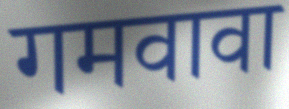
गमवावा